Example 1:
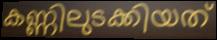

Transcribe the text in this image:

കണ്ണിലുടക്കിയത്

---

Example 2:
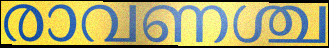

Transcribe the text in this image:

രാവണശ്ച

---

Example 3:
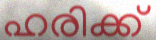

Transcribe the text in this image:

ഹരിക്ക്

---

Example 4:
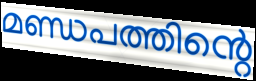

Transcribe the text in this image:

മണ്ഡപത്തിന്റെ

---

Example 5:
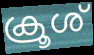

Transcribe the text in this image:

ക്രൂശ്